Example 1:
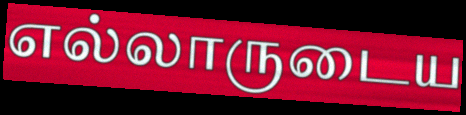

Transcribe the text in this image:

எல்லாருடைய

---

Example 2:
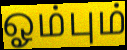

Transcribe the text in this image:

ஓம்பும்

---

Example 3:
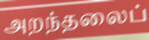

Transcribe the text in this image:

அறந்தலைப்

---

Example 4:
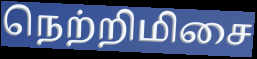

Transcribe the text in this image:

நெற்றிமிசை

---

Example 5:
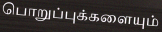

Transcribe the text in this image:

பொறுப்புக்களையும்